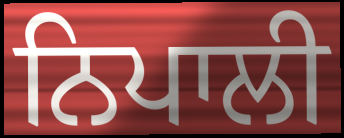
ਨਿਪਾਲੀ